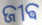
ଜୀଵ